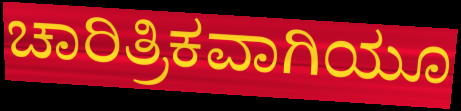
ಚಾರಿತ್ರಿಕವಾಗಿಯೂ